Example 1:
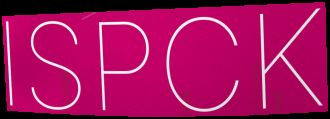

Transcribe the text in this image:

ISPCK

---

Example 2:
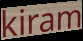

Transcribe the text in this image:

kiram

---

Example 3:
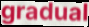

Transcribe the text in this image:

gradual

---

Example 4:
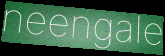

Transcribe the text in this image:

neengale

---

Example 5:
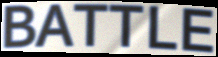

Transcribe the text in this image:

BATTLE